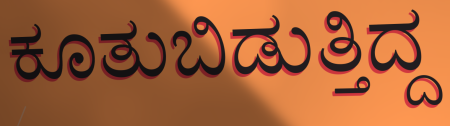
ಕೂತುಬಿಡುತ್ತಿದ್ದ